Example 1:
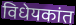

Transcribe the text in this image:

विधेयकांत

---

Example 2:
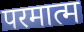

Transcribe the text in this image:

परमात्म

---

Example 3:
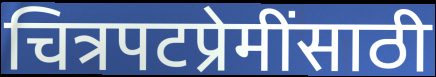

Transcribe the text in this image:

चित्रपटप्रेमींसाठी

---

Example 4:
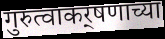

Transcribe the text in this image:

गुरुत्वाकर्षणाच्या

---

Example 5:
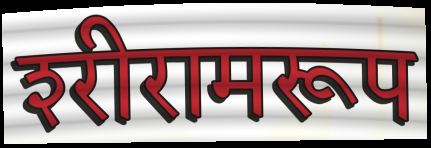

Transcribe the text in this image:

श्रीरामरूप